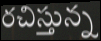
రచిస్తున్న